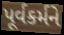
પૂર્વકર્મને